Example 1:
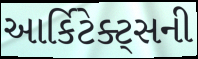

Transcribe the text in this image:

આર્કિટેક્ટ્સની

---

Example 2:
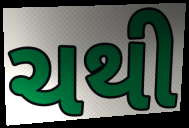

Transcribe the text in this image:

ચથી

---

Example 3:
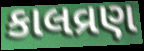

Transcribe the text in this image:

કાલવ્રણ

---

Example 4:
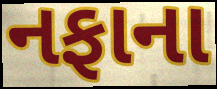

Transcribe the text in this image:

નફાના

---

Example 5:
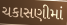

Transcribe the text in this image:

ચકાસણીમાં